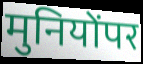
मुनियोंपर